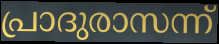
പ്രാദുരാസന്ന്